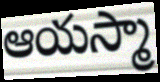
ఆయస్మా